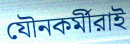
যৌনকর্মীরাই